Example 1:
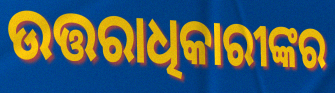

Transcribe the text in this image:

ଉତ୍ତରାଧିକାରୀଙ୍କର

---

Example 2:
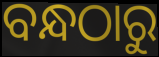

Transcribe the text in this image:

ବନ୍ଧଠାରୁ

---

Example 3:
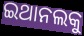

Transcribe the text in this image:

ଇଥାନଲକୁ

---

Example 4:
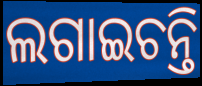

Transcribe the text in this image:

ଲଗାଇଚନ୍ତି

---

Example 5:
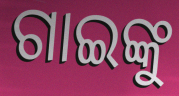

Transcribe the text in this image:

ଗାଇଙ୍କୁ